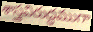
శాస్త్రవిరుద్ధముగా